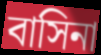
বাসিনা